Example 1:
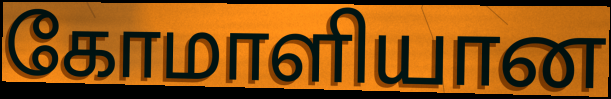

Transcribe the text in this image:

கோமாளியான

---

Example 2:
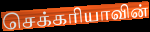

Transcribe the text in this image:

செக்கரியாவின்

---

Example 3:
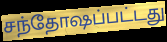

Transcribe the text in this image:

சந்தோஷப்பட்டது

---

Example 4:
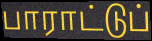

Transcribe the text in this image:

பாராட்டுப்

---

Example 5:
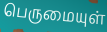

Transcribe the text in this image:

பெருமையுள்